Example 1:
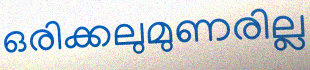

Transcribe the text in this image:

ഒരിക്കലുമുണരില്ല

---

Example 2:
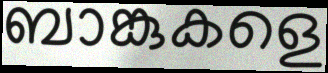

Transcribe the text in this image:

ബാങ്കുകളെ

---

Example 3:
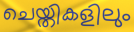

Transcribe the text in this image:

ചെയ്തികളിലും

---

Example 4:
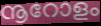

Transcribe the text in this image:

നൂറോളം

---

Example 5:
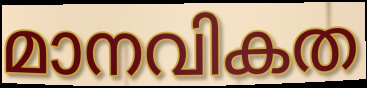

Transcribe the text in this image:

മാനവികത